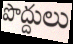
పొద్దులు